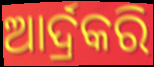
ଆର୍ଦ୍ରକରି